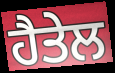
ਹੈਤੇਲ